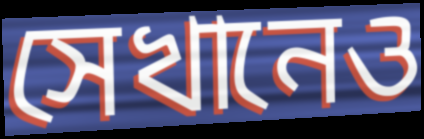
সেখানেও